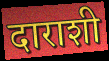
दाराशी